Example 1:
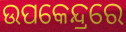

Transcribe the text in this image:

ଉପକେନ୍ଦ୍ରରେ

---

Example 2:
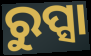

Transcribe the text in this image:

ରୁପ୍ସା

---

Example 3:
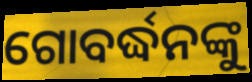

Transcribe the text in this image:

ଗୋବର୍ଦ୍ଧନଙ୍କୁ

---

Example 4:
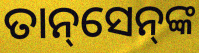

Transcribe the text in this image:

ତାନ୍‌ସେନ୍‌ଙ୍କ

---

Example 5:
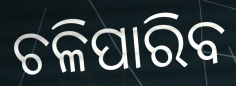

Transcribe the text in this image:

ଚଳିପାରିବ